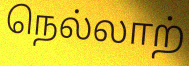
நெல்லாற்